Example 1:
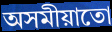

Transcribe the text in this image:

অসমীয়াতো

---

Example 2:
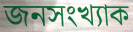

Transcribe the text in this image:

জনসংখ্যাক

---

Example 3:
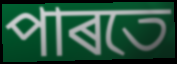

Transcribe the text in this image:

পাৰতে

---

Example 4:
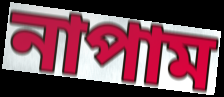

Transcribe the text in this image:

নাপাম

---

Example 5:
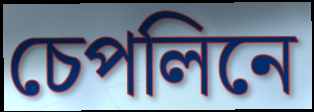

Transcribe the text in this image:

চেপলিনে